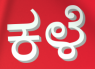
ಕಳೆ